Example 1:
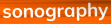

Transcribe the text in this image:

sonography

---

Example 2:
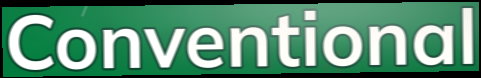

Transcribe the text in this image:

Conventional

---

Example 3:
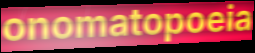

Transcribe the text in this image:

onomatopoeia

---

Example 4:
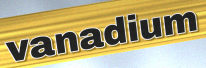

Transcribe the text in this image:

vanadium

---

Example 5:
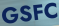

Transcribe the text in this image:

GSFC